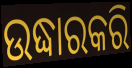
ଉଦ୍ଧାରକରି